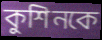
কুশিনকে